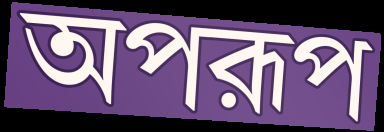
অপরূপ